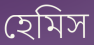
হেমিস